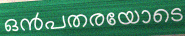
ഒൻപതരയോടെ